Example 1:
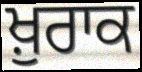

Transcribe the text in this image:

ਖ਼ੁਰਾਕ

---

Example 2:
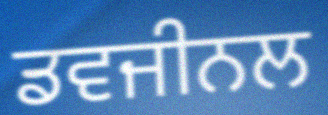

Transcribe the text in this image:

ਡਵਜੀਨਲ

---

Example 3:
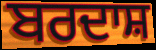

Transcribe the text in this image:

ਬਰਦਾਸ਼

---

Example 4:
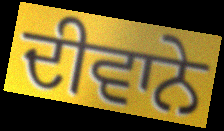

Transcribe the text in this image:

ਦੀਵਾਨੇ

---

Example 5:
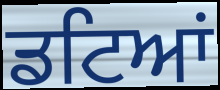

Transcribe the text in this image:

ਡਟਿਆਂ